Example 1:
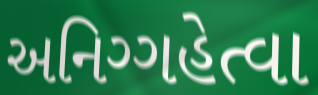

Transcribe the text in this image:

અનિગ્ગહેત્વા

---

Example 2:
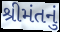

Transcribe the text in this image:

શ્રીમંતનું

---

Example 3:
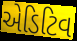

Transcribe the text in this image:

એડિટિવ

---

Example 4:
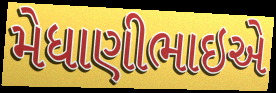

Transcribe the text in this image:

મેધાણીભાઇએ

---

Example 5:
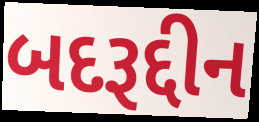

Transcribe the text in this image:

બદરૂદ્દીન